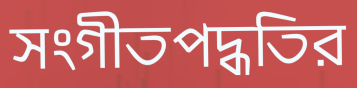
সংগীতপদ্ধতির